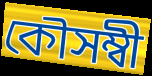
কৌসম্বী